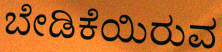
ಬೇಡಿಕೆಯಿರುವ